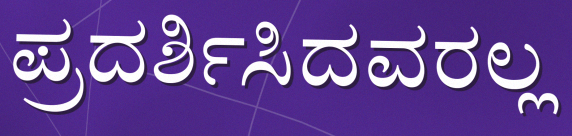
ಪ್ರದರ್ಶಿಸಿದವರಲ್ಲ